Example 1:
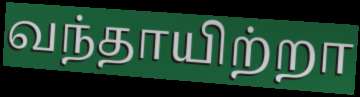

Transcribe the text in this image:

வந்தாயிற்றா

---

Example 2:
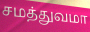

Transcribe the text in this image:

சமத்துவமா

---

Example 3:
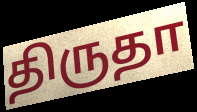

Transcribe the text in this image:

திருதா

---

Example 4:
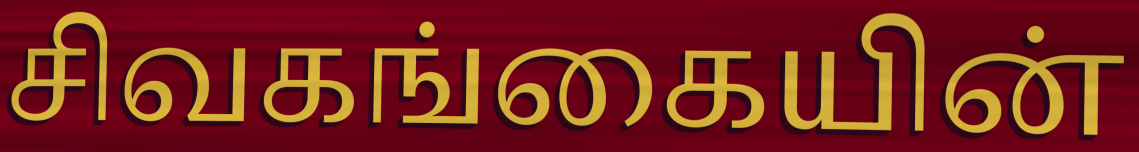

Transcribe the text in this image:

சிவகங்கையின்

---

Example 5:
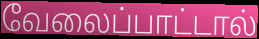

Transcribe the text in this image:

வேலைப்பாட்டால்